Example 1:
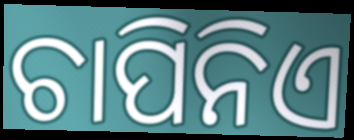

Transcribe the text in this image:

ଚାପିନିଏ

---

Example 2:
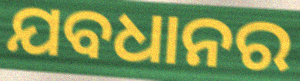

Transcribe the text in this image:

ଯବଧାନର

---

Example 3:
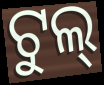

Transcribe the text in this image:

ଟୁଲ୍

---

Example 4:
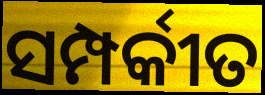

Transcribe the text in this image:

ସମ୍ପର୍କୀତ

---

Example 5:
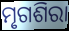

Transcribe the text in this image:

ମୃଗଶିରା